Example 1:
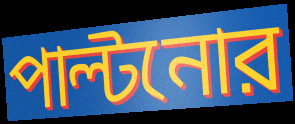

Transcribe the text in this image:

পাল্টনোর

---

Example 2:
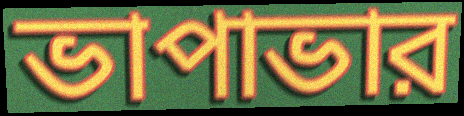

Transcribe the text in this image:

ভাপাভার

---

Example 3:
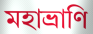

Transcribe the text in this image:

মহাভ্রাণি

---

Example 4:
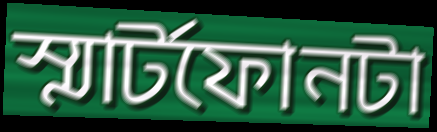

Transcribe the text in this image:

স্মার্টফোনটা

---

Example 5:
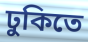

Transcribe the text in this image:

ঢুকিতে